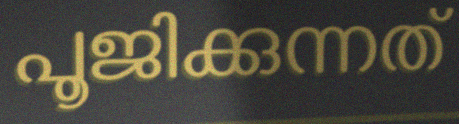
പൂജിക്കുന്നത്